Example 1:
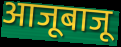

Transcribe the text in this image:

आजूबाजू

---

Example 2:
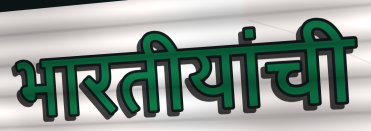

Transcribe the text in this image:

भारतीयांची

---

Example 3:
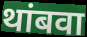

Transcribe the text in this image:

थांबवा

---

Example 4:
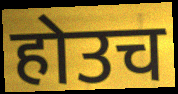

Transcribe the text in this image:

होउच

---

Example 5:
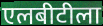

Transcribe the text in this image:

एलबीटीला